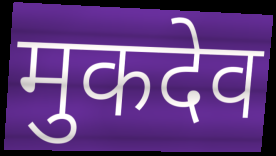
मुकदेव